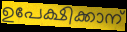
ഉപേക്ഷിക്കാന്